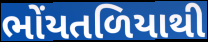
ભોંયતળિયાથી